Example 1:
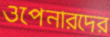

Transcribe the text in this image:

ওপেনারদের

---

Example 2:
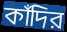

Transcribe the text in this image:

কাঁদির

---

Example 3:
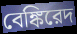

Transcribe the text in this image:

বেঙ্কিরেদ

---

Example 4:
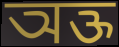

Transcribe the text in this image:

অক্ত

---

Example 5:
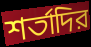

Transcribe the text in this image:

শর্তাদির